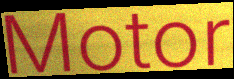
Motor